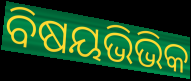
ବିଷୟଭିଭିକ